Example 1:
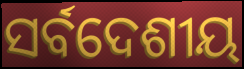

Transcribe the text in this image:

ସର୍ବଦେଶୀୟ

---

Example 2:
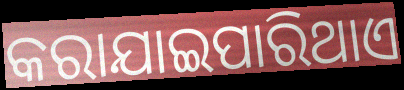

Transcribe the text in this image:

କରାଯାଇପାରିଥାଏ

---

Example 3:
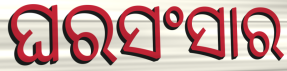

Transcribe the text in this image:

ଘରସଂସାର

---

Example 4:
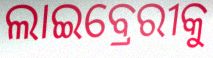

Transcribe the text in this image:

ଲାଇବ୍ରେରୀକୁ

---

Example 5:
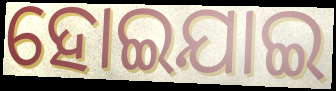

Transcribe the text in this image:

ହୋଇଯାଇ